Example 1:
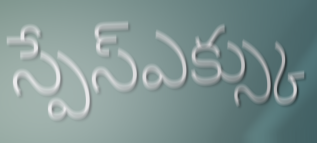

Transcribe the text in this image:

స్పేస్ఎక్స్కు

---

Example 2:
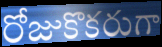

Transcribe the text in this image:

రోజుకొకరుగా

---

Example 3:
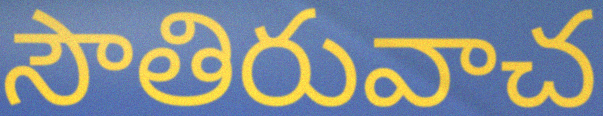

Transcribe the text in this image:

సౌతిరువాచ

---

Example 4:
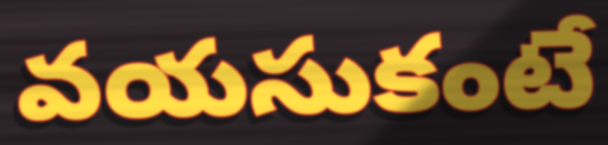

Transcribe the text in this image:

వయసుకంటే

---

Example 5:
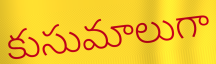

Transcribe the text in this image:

కుసుమాలుగా